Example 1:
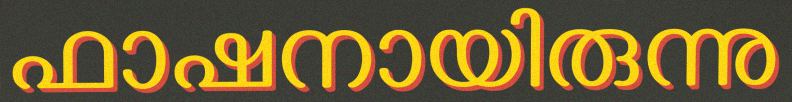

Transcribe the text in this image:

ഫാഷനായിരുന്നു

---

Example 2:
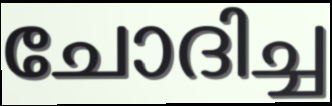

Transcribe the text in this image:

ചോദിച്ച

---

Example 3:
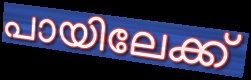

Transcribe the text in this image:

പായിലേക്ക്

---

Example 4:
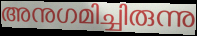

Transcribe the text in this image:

അനുഗമിച്ചിരുന്നു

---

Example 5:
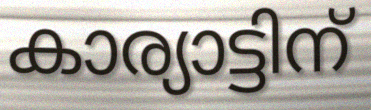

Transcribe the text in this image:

കാര്യാട്ടിന്